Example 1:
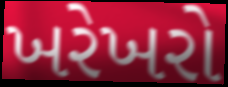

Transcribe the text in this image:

ખરેખરો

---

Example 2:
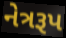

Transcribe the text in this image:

નેત્રરૂપ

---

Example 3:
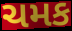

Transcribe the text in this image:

ચમક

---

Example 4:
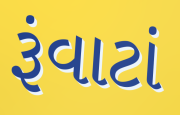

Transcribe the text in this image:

રૂંવાટાં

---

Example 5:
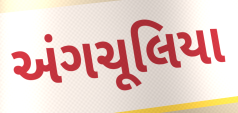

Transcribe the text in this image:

અંગચૂલિયા